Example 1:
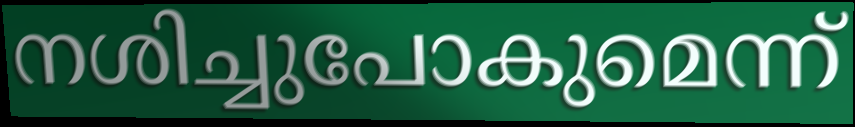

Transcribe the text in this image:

നശിച്ചുപോകുമെന്ന്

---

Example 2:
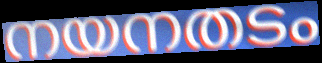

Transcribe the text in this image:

നയനതടം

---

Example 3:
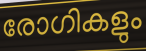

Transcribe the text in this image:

രോഗികളും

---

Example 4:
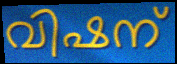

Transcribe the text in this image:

വിഷന്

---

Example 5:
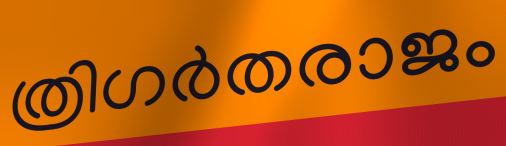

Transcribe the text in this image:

ത്രിഗർതരാജം